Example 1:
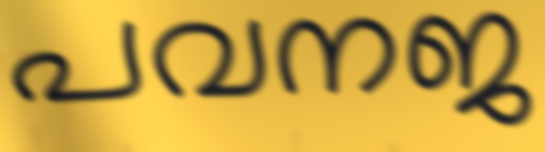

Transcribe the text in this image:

പവനജ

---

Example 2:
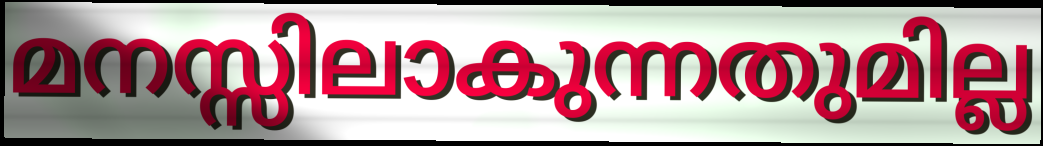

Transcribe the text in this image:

മനസ്സിലാകുന്നതുമില്ല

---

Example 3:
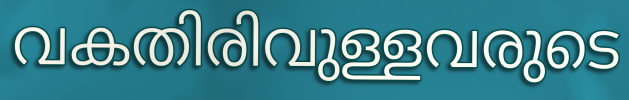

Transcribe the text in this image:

വകതിരിവുള്ളവരുടെ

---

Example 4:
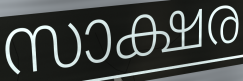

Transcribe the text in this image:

സാക്ഷര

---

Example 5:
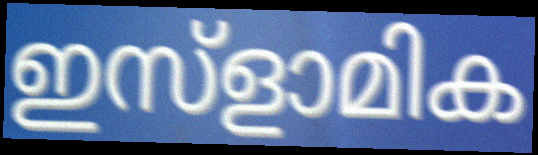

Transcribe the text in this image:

ഇസ്ളാമിക